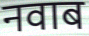
नवाब